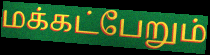
மக்கட்பேறும்